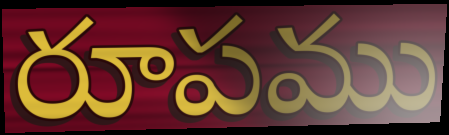
రూపము